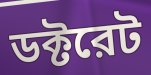
ডক্টরেট